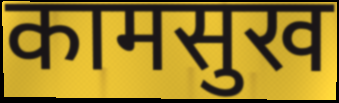
कामसुख